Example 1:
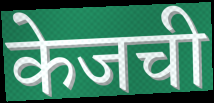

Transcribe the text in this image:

केजची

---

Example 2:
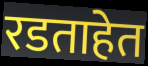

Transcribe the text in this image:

रडताहेत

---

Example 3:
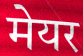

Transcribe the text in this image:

मेयर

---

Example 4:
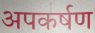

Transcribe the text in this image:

अपकर्षण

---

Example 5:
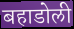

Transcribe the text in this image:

बहाडोली